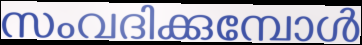
സംവദിക്കുമ്പോൾ